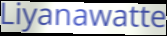
Liyanawatte